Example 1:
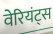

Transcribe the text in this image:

वेरियंट्स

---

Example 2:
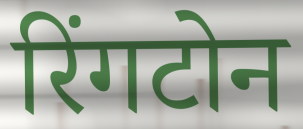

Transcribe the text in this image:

रिंगटोन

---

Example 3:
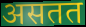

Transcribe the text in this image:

असतत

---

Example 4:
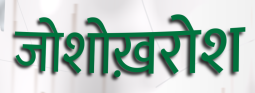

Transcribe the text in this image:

जोशोख़रोश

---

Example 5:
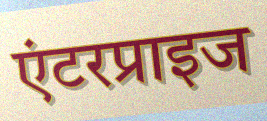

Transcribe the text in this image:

एंटरप्राइज